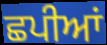
ਛਪੀਆਂ